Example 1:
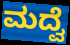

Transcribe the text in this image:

ಮದ್ವೆ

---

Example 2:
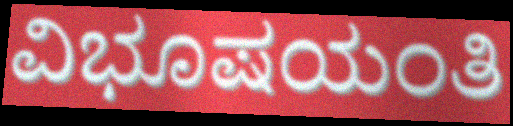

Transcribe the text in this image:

ವಿಭೂಷಯಂತಿ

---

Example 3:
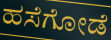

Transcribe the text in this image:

ಹಸೆಗೋಡೆ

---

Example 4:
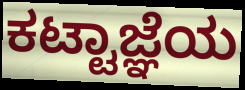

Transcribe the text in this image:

ಕಟ್ಟಾಜ್ಞೆಯ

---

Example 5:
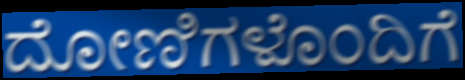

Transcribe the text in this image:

ದೋಣಿಗಳೊಂದಿಗೆ